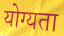
योग्यता